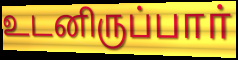
உடனிருப்பார்